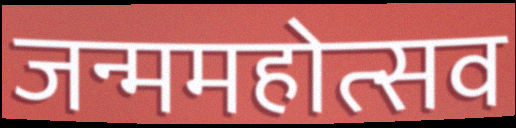
जन्ममहोत्सव